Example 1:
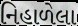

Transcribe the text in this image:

નિહાળેલા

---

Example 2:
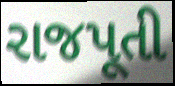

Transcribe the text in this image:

રાજપૂતી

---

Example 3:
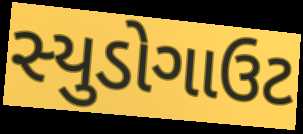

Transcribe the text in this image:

સ્યુડોગાઉટ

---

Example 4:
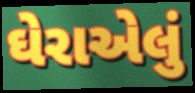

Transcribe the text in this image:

ઘેરાએલું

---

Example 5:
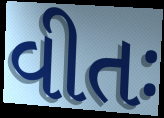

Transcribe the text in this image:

વીતઃ